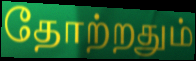
தோற்றதும்